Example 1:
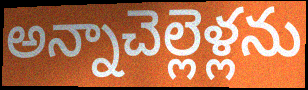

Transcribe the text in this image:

అన్నాచెల్లెళ్లను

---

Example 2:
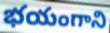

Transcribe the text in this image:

భయంగాని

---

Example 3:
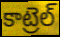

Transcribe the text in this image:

కాట్రెల్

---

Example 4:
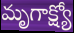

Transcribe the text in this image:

మృగాక్ష్యో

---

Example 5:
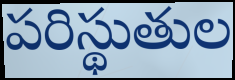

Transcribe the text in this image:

పరిస్థుతుల